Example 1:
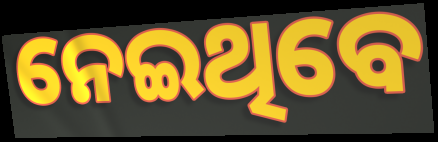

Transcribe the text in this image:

ନେଇଥିବେ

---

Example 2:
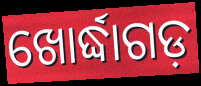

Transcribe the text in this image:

ଖୋର୍ଦ୍ଧାଗଡ଼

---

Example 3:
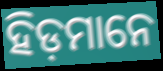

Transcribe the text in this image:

ହିଡ଼ମାନେ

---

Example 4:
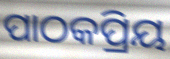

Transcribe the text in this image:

ପାଠକପ୍ରିୟ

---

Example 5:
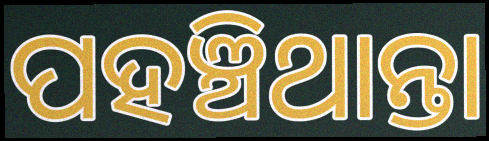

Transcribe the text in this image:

ପହଞ୍ଚିଥାନ୍ତା